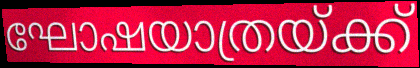
ഘോഷയാത്രയ്ക്ക്